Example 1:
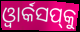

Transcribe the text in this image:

ଓ୍ୱାର୍କସପ୍‌କୁ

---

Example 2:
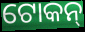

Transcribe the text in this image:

ଟୋକନ୍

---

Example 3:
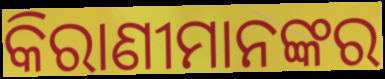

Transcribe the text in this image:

କିରାଣୀମାନଙ୍କର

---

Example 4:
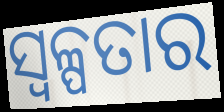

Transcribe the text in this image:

ସ୍ଵଳ୍ପତାର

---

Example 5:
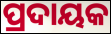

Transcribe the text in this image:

ପ୍ରଦାୟକ